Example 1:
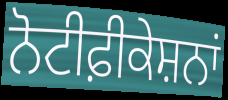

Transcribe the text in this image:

ਨੋਟੀਫ਼ੀਕੇਸ਼ਨਾਂ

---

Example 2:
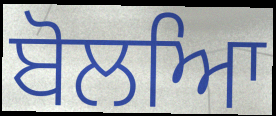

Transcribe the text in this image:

ਬੋਲਆਿ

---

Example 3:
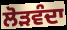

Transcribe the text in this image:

ਲੋੜਵੰਦਾ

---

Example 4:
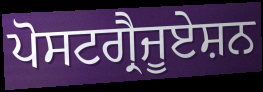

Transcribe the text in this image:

ਪੋਸਟਗ੍ਰੈਜੂਏਸ਼ਨ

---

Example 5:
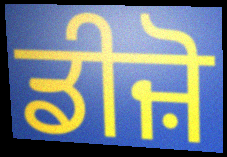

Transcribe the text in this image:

ਡੀਜ਼ੋ